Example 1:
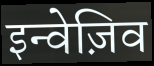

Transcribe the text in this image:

इन्वेज़िव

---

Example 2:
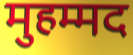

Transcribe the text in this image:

मुहम्‍मद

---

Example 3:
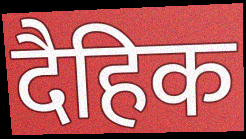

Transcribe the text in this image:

दैहिक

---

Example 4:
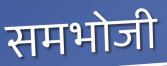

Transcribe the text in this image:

समभोजी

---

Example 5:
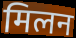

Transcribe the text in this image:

मिलन